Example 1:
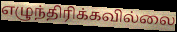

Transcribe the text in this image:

எழுந்திரிக்கவில்லை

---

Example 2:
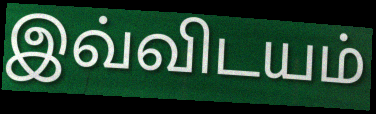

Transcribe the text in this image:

இவ்விடயம்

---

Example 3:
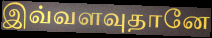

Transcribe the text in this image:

இவ்வளவுதானே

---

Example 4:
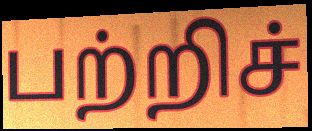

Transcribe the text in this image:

பற்றிச்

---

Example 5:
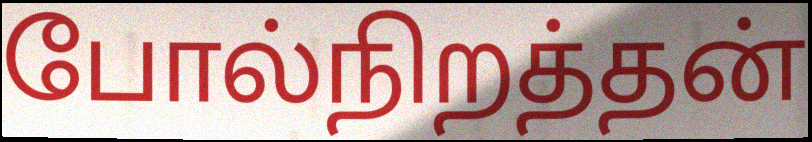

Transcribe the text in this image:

போல்நிறத்தன்